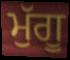
ਮੁੱਗੂ